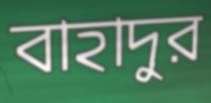
বাহাদুর